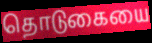
தொடுகையை